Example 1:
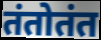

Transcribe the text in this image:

तंतोतंत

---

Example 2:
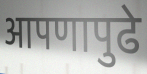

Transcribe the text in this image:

आपणापुढे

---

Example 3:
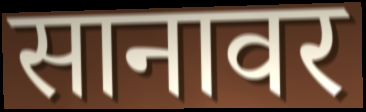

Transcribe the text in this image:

सानावर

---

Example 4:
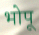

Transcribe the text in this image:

भोपू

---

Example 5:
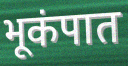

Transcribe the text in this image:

भूकंपात